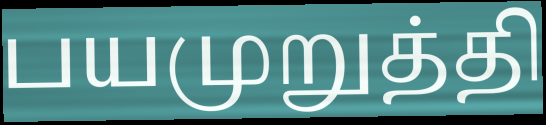
பயமுறுத்தி